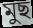
মুছ